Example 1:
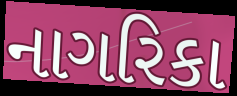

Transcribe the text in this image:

નાગરિકા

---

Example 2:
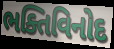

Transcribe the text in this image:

ભક્તિવિનોદ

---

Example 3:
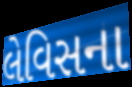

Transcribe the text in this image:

લેવિસના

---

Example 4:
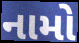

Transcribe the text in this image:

નામો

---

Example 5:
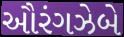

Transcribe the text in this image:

ઔરંગઝેબે